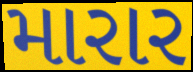
મારાર